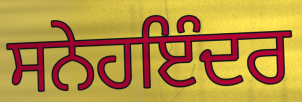
ਸਨੇਹਇੰਦਰ